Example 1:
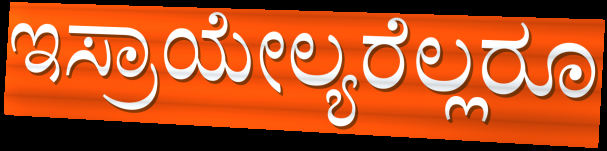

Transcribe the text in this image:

ಇಸ್ರಾಯೇಲ್ಯರೆಲ್ಲರೂ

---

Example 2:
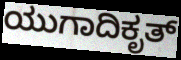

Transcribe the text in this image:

ಯುಗಾದಿಕೃತ್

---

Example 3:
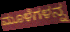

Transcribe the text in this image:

ಮೂಳೆಗಳನ್ನ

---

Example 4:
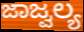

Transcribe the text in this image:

ಜಾಜ್ವಲ್ಯ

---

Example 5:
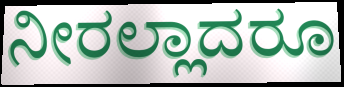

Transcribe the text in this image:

ನೀರಲ್ಲಾದರೂ